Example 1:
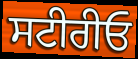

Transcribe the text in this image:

ਸਟੀਰੀਓ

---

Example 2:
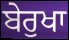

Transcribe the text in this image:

ਬੇਰੁਖਾ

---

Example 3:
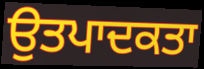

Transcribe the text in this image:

ਉਤਪਾਦਕਤਾ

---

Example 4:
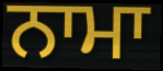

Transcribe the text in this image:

ਨਾਮਾ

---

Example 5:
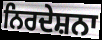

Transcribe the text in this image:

ਨਿਰਦੇਸ਼ਨਾ